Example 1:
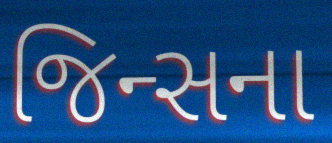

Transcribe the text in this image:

જિન્સના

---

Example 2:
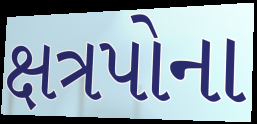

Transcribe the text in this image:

ક્ષત્રપોના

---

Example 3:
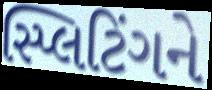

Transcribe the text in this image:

સ્પ્લિટિંગને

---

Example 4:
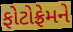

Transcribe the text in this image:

ફોટોફ્રેમને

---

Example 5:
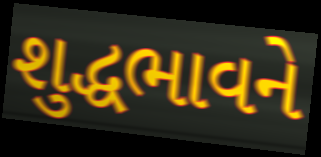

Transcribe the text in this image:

શુદ્ધભાવને